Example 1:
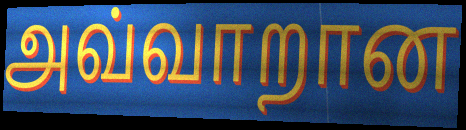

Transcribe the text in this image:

அவ்வாறான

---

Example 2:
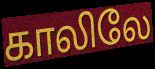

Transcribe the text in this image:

காலிலே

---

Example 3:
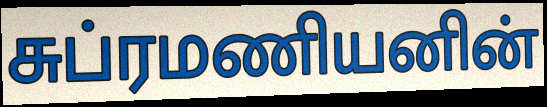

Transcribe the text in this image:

சுப்ரமணியனின்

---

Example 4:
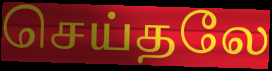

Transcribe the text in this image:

செய்தலே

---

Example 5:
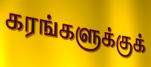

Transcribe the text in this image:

கரங்களுக்குக்